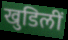
खुडिलीं